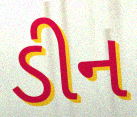
ડીન